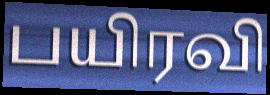
பயிரவி